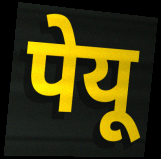
पेयू